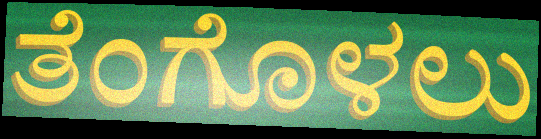
ತೆಂಗೊಳಲು